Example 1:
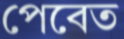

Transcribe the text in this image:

পেবেত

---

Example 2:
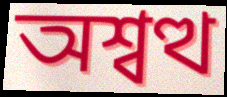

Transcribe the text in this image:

অশ্বত্থ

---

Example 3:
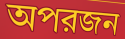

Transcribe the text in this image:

অপরজন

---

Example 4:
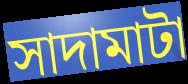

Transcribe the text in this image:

সাদামাটা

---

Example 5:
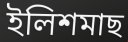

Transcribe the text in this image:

ইলিশমাছ